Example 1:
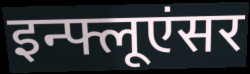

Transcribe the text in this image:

इन्फ्लूएंसर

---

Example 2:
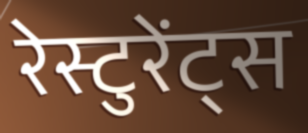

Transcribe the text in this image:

रेस्टुरेंट्स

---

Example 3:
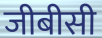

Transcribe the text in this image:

जीबीसी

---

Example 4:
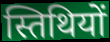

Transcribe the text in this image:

स्तिथियों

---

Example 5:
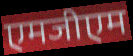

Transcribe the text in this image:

एमजीएम